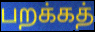
பறக்கத்